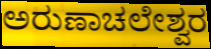
ಅರುಣಾಚಲೇಶ್ವರ